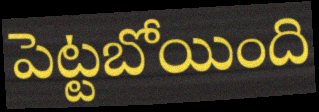
పెట్టబోయింది